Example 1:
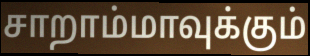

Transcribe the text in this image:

சாறாம்மாவுக்கும்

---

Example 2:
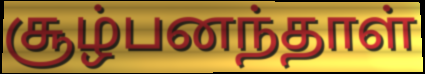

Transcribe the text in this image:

சூழ்பனந்தாள்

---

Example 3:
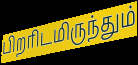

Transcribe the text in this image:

பிறரிடமிருந்தும்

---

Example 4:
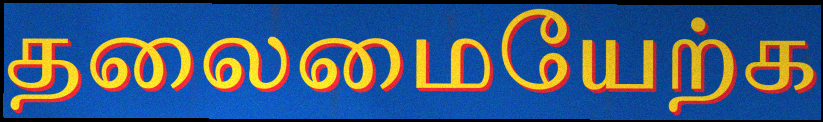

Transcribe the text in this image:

தலைமையேற்க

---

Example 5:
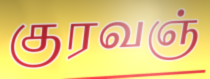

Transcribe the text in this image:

குரவஞ்